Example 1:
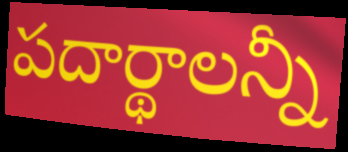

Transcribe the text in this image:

పదార్థాలన్నీ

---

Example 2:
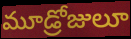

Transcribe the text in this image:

మూడ్రోజులూ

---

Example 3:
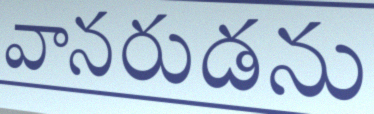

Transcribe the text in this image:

వానరుడను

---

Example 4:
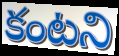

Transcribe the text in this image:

కంటని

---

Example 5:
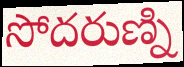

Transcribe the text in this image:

సోదరుణ్ని